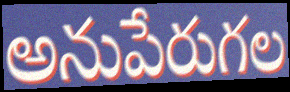
అనుపేరుగల